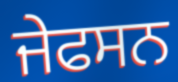
ਜੇਫਸਨ